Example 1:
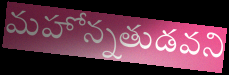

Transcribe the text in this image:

మహోన్నతుడవని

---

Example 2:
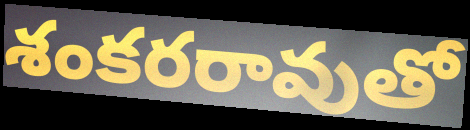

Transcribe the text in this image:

శంకరరావుతో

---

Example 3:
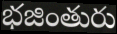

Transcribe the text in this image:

భజింతురు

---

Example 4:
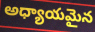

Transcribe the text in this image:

అధ్యాయమైన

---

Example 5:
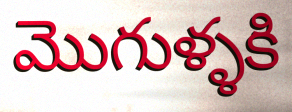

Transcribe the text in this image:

మొగుళ్ళకి